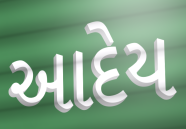
આદેય